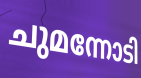
ചുമന്നോടി